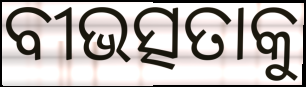
ବୀଭତ୍ସତାକୁ